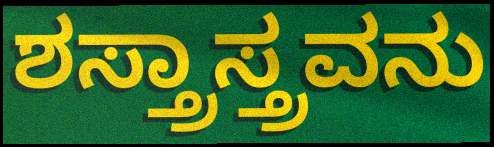
ಶಸ್ತ್ರಾಸ್ತ್ರವನು